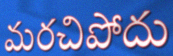
మరచిపోదు